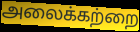
அலைக்கற்றை